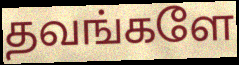
தவங்களே